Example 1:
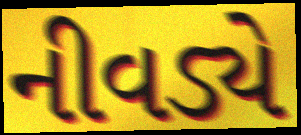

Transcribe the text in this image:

નીવડ્યે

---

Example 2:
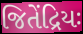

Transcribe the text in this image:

જિતેંદ્રિયઃ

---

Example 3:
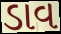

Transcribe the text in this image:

ડાવ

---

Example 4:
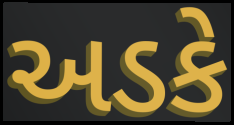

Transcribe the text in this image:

અડકે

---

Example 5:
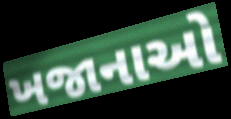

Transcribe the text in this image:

ખજાનાઓ